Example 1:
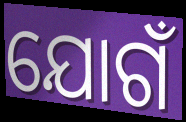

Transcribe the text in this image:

ଯୋଗଁ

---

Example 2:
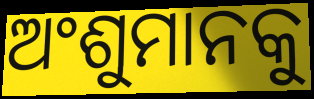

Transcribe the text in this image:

ଅଂଶୁମାନକୁ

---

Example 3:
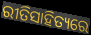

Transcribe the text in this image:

ରୀତିସାହିତ୍ୟରେ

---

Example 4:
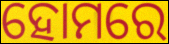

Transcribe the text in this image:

ହୋମରେ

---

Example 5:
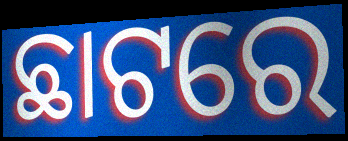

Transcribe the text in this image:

ଛାଟରେ